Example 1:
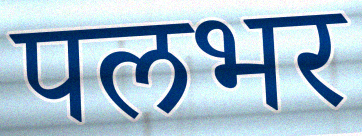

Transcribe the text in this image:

पलभर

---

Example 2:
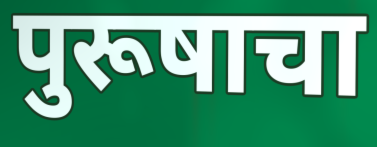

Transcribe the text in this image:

पुरूषाचा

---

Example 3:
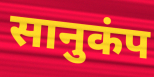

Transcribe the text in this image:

सानुकंप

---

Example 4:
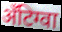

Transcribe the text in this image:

अँटिग्वा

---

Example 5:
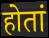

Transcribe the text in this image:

होतां